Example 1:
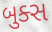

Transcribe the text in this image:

બુક્સ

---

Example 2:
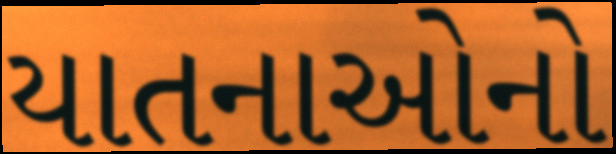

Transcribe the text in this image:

યાતનાઓનો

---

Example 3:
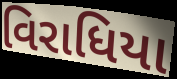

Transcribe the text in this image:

વિરાધિયા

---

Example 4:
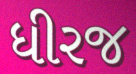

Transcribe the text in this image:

ધીરજ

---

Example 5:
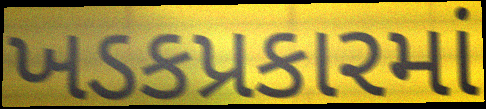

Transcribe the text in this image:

ખડકપ્રકારમાં